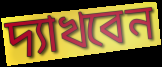
দ্যাখবেন